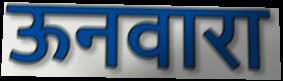
ऊनवारा